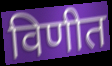
विणीत